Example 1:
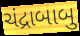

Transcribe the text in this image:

ચંદ્રાબાબુ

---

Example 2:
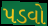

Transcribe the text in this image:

પડવો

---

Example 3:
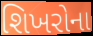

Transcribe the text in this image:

શિખરોના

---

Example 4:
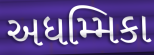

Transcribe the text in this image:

અધમ્મિકા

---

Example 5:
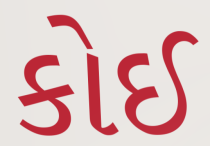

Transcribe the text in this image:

કોઈ